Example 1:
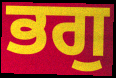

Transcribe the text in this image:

ਭਗੁ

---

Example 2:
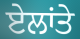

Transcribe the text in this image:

ਏਲਾਂਤੇ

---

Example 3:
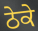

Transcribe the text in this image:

ਠੇਕੇ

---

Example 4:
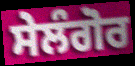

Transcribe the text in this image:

ਸੇਲੰਗੋਰ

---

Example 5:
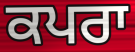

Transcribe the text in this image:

ਕਪਰਾ